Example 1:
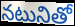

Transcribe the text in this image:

నటునితో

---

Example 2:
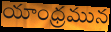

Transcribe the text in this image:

యాంధ్రమున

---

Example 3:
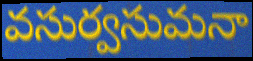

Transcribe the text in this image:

వసుర్వసుమనా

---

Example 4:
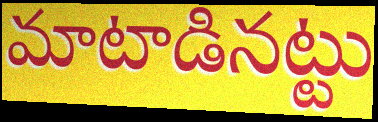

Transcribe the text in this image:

మాటాడినట్టు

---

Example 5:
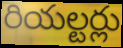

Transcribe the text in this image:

రియల్టర్లు